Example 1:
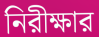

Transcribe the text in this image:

নিরীক্ষার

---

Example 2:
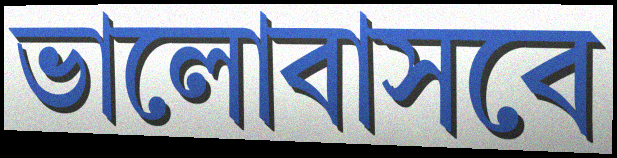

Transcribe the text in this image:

ভালোবাসবে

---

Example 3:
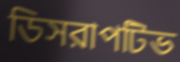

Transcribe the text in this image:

ডিসরাপটিভ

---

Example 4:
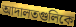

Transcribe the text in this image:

আদালতগুলিকে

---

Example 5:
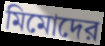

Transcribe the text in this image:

মিমোদের